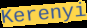
Kerenyi